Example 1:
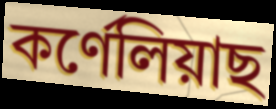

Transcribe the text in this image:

কৰ্ণেলিয়াছ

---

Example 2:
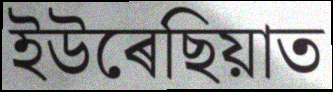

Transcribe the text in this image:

ইউৰেছিয়াত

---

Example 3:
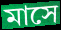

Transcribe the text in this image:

মাসে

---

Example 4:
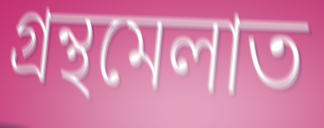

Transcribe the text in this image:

গ্ৰন্থমেলাত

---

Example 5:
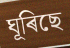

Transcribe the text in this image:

ঘূৰিছে